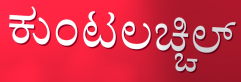
ಕುಂಟಲಚ್ಚಿಲ್